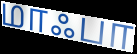
மாஃபா